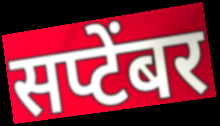
सप्टेंबर